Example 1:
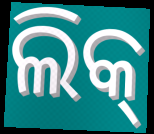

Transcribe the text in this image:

ଲିକ୍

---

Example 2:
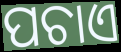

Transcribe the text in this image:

ପଚାଏ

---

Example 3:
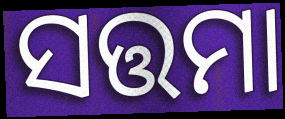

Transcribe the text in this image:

ସତ୍ତମା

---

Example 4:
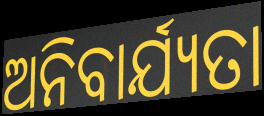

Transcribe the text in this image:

ଅନିବାର୍ଯ୍ୟତା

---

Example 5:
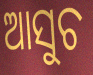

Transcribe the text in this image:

ଆସୁଚ